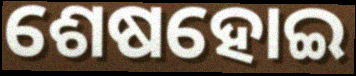
ଶେଷହୋଇ